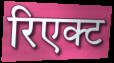
रिएक्ट